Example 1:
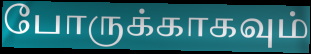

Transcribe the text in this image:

போருக்காகவும்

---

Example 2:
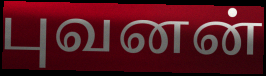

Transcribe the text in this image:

புவனன்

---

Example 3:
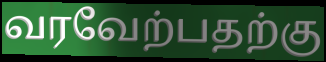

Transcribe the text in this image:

வரவேற்பதற்கு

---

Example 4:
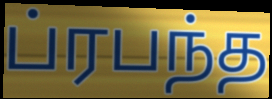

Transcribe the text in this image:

ப்ரபந்த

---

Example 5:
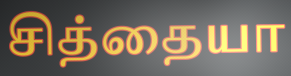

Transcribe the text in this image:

சித்தையா